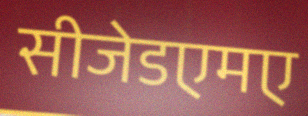
सीजेडएमए